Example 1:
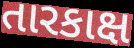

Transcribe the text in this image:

તારકાક્ષ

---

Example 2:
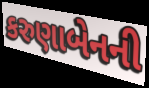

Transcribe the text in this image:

કરુણાબેનની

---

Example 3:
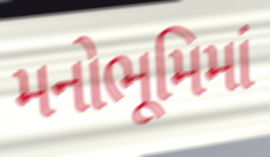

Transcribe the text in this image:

મનોભૂમિમાં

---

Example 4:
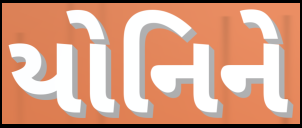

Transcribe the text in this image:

યોનિને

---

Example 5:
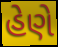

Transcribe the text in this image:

હેણે